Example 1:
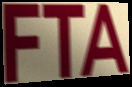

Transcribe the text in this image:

FTA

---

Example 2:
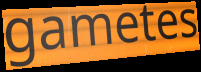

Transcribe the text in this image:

gametes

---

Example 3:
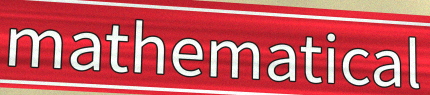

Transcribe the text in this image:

mathematical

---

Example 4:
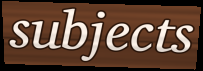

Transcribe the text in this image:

subjects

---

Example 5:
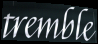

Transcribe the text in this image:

tremble